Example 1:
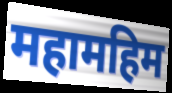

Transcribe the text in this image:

महामहिम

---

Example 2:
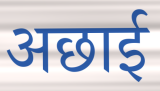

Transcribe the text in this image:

अछाई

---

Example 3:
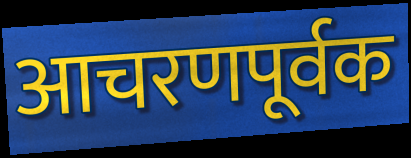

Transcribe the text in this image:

आचरणपूर्वक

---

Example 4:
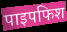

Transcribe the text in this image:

पाइपफिश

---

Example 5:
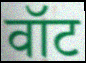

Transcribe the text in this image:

वॉट